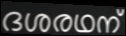
ദശരഥന്